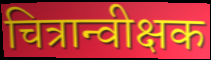
चित्रान्वीक्षक